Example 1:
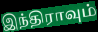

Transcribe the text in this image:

இந்திராவும்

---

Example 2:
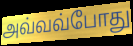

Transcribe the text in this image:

அவ்வவ்போது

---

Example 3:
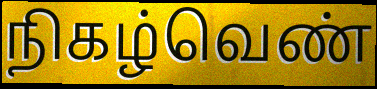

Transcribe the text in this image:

நிகழ்வெண்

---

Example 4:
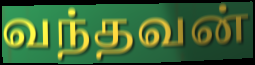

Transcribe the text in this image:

வந்தவன்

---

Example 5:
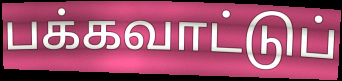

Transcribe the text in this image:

பக்கவாட்டுப்